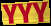
YYY